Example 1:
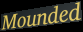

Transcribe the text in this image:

Mounded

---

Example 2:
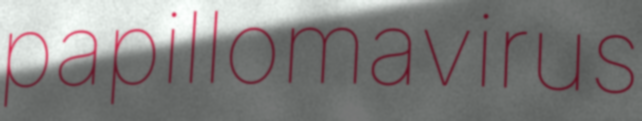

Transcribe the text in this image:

papillomavirus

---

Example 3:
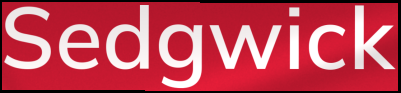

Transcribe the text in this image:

Sedgwick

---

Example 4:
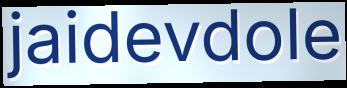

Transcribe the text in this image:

jaidevdole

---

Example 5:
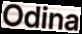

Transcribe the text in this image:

Odina